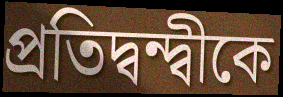
প্রতিদ্বন্দ্বীকে